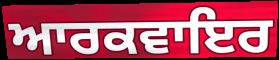
ਆਰਕਵਾਇਰ